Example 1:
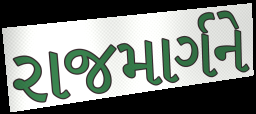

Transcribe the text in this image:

રાજમાર્ગને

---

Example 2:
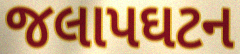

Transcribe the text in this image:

જલાપઘટન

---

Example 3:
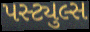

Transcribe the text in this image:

પસ્ટ્યુલ્સ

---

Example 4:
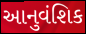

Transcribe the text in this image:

આનુવંશિક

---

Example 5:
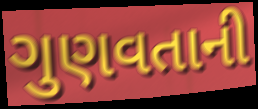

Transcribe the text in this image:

ગુણવતાની